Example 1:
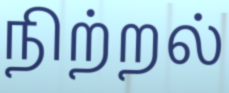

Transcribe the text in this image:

நிற்றல்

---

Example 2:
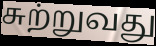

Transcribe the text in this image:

சுற்றுவது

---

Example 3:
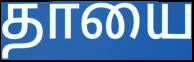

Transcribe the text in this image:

தாயை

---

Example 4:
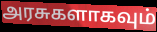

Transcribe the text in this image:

அரசுகளாகவும்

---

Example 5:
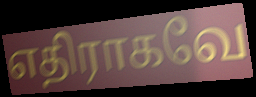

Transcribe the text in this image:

எதிராகவே